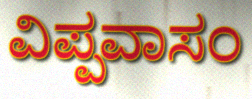
ವಿಪ್ಪವಾಸಂ